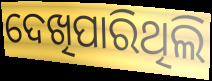
ଦେଖିପାରିଥିଲି